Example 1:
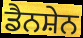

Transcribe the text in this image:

ਡੈਨਸ਼ੇਨ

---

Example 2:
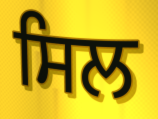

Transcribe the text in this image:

ਸਿਲ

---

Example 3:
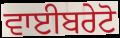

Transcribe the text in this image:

ਵਾਈਬਰੇਟੋ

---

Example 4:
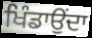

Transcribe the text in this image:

ਖਿੰਡਾਉਂਦਾ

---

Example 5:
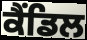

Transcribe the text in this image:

ਕੈਂਡਿਲ